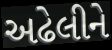
અઢેલીને